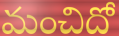
మంచిదో